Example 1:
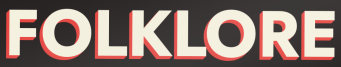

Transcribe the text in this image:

FOLKLORE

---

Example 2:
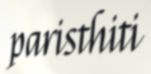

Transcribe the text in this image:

paristhiti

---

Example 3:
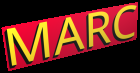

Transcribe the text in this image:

MARC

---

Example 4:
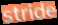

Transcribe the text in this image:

stride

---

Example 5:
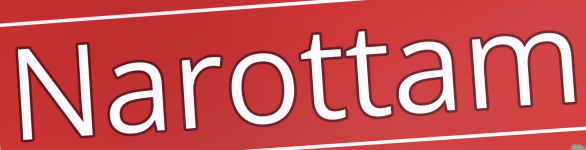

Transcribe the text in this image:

Narottam